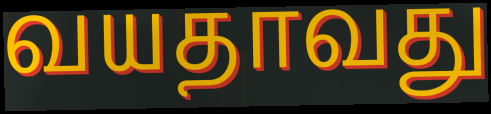
வயதாவது